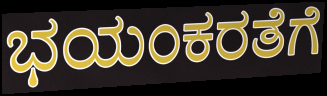
ಭಯಂಕರತೆಗೆ